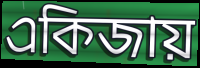
একিজায়